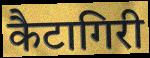
कैटागिरी